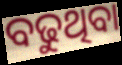
ବଢୁଥିବା